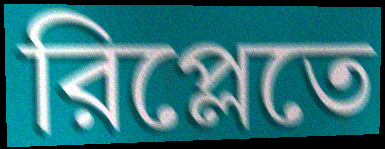
রিপ্লেতে